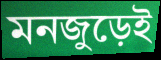
মনজুড়েই